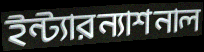
ইন্ট্যারন্যাশনাল